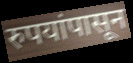
रुपयांपासून